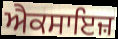
ਐਕਸਾਇਜ਼